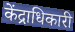
केंद्राधिकारी